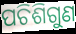
ପଚିଶିଗୁଣ